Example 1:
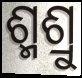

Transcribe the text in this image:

ଶ୍ମଶ୍ରୁ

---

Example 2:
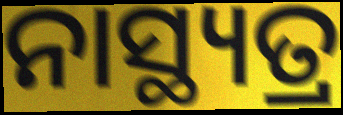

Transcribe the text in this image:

ନାସ୍ଥ୍ୟତ୍ର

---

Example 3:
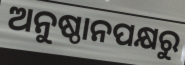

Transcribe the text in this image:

ଅନୁଷ୍ଠାନପକ୍ଷରୁ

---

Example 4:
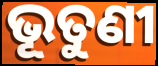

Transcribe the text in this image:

ଭୂତୁଣୀ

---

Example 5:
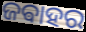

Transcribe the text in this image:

ଜଵାହର